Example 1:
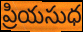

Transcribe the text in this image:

ప్రియసుధ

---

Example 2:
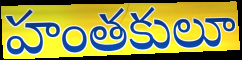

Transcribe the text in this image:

హంతకులూ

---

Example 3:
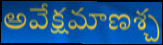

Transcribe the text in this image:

అవేక్షమాణశ్చ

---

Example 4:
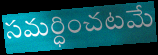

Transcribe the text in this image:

సమర్ధించటమే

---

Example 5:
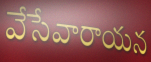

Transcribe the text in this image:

వేసేవారాయన